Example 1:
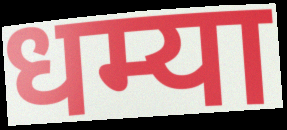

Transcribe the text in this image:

धम्या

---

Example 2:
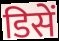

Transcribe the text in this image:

डिसें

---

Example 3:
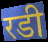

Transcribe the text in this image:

रडी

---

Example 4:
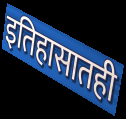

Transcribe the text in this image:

इतिहासातही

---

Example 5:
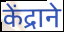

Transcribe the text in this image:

केंद्राने